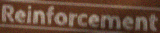
Reinforcement